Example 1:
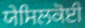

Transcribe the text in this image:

ਯੇਸਿਲਕੋਈ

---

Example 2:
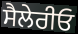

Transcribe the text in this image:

ਸੈਲੇਰੀਓ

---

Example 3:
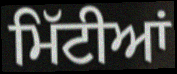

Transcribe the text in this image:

ਮਿੱਟੀਆਂ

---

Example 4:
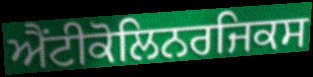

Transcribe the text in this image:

ਐਂਟੀਕੋਲਿਨਰਜਿਕਸ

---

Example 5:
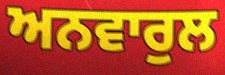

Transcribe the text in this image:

ਅਨਵਾਰੁਲ